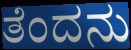
ತೆಂದನು